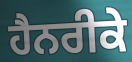
ਹੈਨਰੀਕੇ